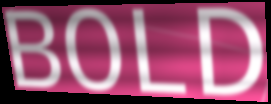
BOLD